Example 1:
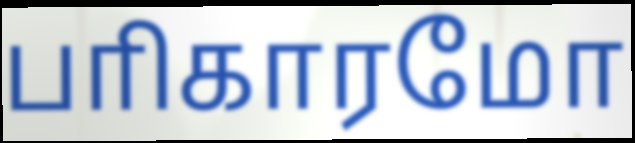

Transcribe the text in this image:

பரிகாரமோ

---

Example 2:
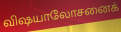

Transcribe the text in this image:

விஷயாலோசனைக்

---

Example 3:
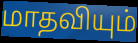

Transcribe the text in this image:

மாதவியும்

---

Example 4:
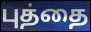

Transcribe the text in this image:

புத்தை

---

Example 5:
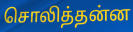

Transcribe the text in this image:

சொலித்தன்ன